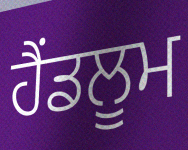
ਹੈਂਡਲੂਮ